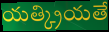
యత్క్రియతే